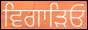
ਵਿਗਾੜਿਓ